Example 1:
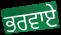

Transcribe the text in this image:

ਭਰਵਾਏ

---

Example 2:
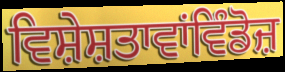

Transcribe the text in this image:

ਵਿਸ਼ੇਸ਼ਤਾਵਾਂਵਿੰਡੋਜ਼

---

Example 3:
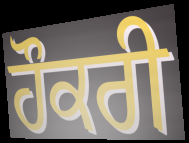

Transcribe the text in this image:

ਹੌਕਰੀ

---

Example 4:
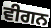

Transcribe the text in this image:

ਵੀਗਨ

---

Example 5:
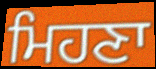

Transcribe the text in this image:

ਮਿਹਣਾ